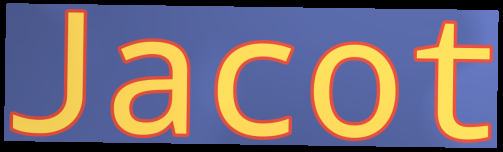
Jacot